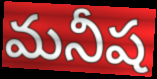
మనీష